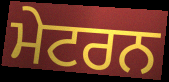
ਮੇਟਰਨ